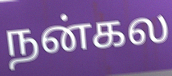
நன்கல